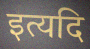
इत्यदि